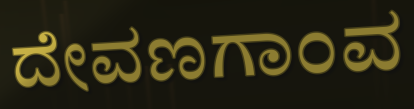
ದೇವಣಗಾಂವ